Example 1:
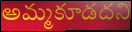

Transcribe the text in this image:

అమ్మకూడదని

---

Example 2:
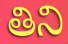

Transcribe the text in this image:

తిని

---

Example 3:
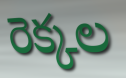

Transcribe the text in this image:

రెక్కల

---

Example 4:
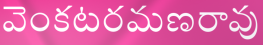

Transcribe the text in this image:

వెంకటరమణరావు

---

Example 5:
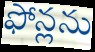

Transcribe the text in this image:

ఫోన్లను